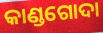
କାଣ୍ଡଗୋଦା